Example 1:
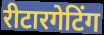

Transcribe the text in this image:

रीटारगेटिंग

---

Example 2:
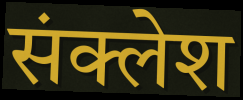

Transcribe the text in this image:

संक्लेश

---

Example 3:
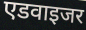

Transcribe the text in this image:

एडवाइजर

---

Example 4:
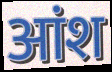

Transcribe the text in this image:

आंश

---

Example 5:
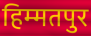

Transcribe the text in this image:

हिम्मतपुर